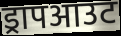
ड्रापआउट